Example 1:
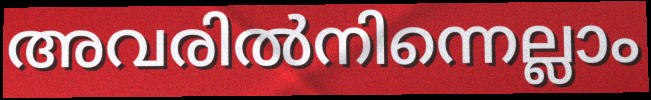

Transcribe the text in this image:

അവരിൽനിന്നെല്ലാം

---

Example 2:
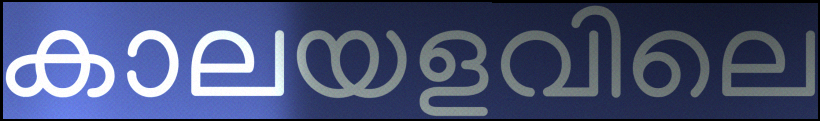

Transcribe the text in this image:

കാലയളവിലെ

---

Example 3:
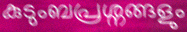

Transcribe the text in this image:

കുടുംബപ്രശ്നങ്ങളും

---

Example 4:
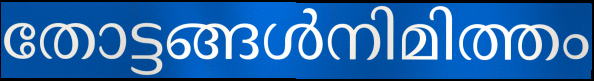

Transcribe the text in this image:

തോട്ടങ്ങൾനിമിത്തം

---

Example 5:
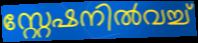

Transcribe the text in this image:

സ്റ്റേഷനിൽവച്ച്